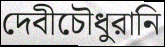
দেবীচৌধুরানি